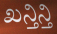
ಖನ್ತಿನ್ತಿ